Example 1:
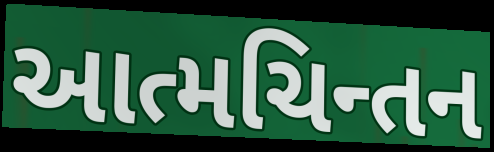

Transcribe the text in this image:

આત્મચિન્તન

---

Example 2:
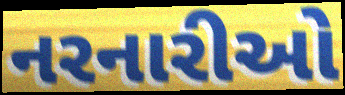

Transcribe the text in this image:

નરનારીઓ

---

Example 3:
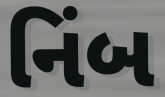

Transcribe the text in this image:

નિંબ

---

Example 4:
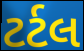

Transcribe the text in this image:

ટર્ટલ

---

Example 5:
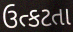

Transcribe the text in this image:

ઉત્કટતા